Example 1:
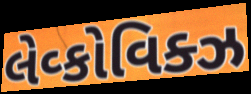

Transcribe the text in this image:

લેવ્કોવિક્ઝ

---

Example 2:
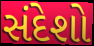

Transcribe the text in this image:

સંદેશો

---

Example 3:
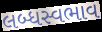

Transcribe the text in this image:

લબ્ધસ્વભાવ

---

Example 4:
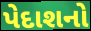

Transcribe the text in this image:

પેદાશનો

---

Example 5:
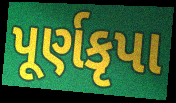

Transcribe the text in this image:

પૂર્ણકૃપા